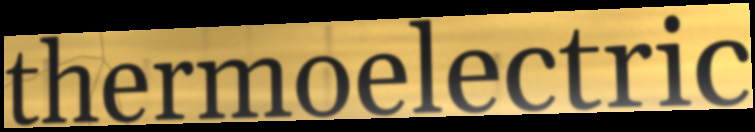
thermoelectric